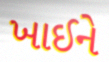
ખાઈને